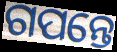
ଗପନ୍ତେ